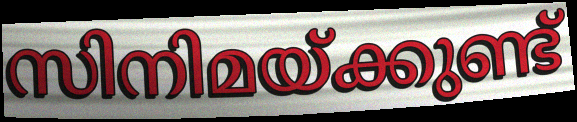
സിനിമയ്ക്കുണ്ട്